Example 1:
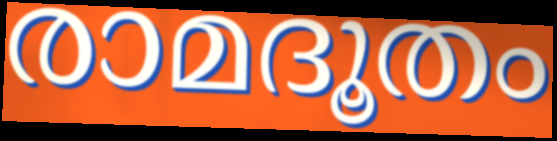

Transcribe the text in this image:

രാമദൂതം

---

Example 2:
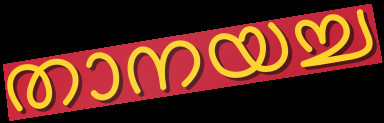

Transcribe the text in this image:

താനയച്ച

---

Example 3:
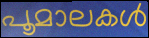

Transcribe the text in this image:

പൂമാലകൾ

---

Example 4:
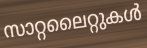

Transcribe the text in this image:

സാറ്റലൈറ്റുകൾ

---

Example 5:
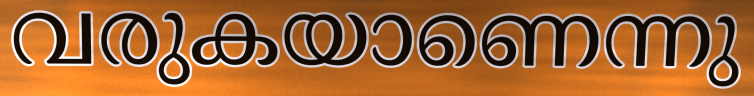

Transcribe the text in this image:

വരുകയാണെന്നു